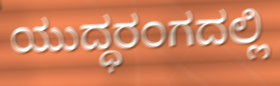
ಯುದ್ಧರಂಗದಲ್ಲಿ